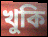
খুকি